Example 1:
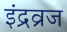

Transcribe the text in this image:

इंद्रव्रज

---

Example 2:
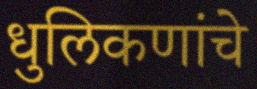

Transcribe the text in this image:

धुलिकणांचे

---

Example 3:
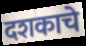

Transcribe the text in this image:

दशकाचे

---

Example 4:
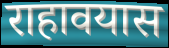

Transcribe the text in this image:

राहावयास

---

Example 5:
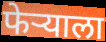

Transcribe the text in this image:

फेऱ्याला